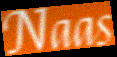
Naas